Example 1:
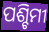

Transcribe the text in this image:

ପଶ୍ଚିମୀ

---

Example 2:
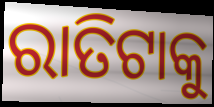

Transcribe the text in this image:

ରାତିଟାକୁ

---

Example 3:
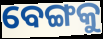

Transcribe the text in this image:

ବେଙ୍ଗକୁ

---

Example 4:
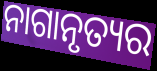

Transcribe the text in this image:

ନାଗାନୃତ୍ୟର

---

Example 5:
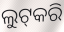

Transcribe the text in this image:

ଲୁଟ୍‍କରି